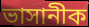
ভাসানীক